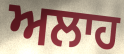
ਅਲਾਹ